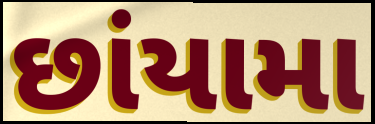
છાંયામા